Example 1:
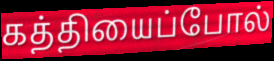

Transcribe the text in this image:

கத்தியைப்போல்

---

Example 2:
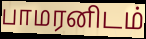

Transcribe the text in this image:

பாமரனிடம்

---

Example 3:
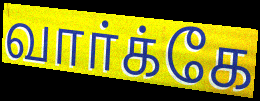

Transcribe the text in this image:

வார்க்கே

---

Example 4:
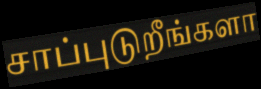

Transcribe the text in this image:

சாப்புடுறீங்களா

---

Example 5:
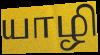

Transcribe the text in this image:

யாழி